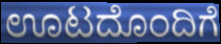
ಊಟದೊಂದಿಗೆ